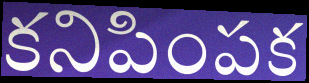
కనిపింపక